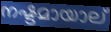
നഷ്ടമായാല്